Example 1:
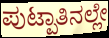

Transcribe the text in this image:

ಪುಟ್ಪಾತಿನಲ್ಲೇ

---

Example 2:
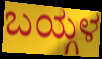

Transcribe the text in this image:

ಬಯ್ಗಳ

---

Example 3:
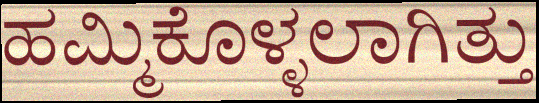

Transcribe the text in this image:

ಹಮ್ಮಿಕೊಳ್ಳಲಾಗಿತ್ತು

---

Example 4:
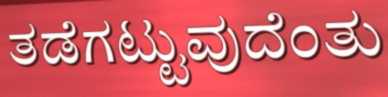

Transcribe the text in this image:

ತಡೆಗಟ್ಟುವುದೆಂತು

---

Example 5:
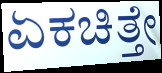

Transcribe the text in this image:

ಏಕಚಿತ್ತೇ